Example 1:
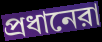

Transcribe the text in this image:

প্রধানেরা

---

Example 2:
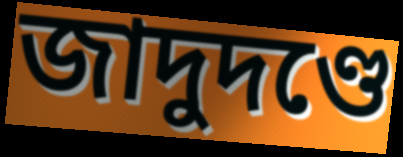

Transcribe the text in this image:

জাদুদণ্ডে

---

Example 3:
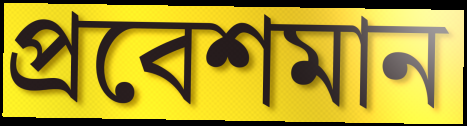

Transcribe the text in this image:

প্রবেশমান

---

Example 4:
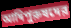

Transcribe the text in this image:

আদিপুরুষদের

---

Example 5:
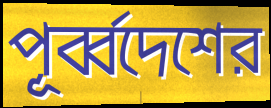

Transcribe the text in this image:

পূর্ব্বদেশের